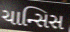
ચાન્સિસ